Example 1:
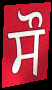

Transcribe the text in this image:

ਸੌ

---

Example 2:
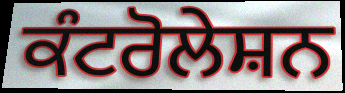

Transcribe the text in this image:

ਕੰਟਰੋਲੇਸ਼ਨ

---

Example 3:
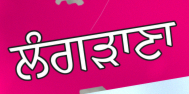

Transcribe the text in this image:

ਲੰਗੜਾਣਾ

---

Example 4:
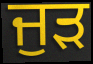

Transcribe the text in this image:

ਜੁੜ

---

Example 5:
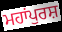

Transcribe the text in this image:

ਮਹਾਂਪੁਰਸ਼